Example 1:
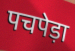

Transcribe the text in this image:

पचपेड़ा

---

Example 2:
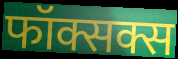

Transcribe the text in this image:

फॉक्सक्स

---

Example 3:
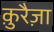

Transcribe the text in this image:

क़ुरैज़ा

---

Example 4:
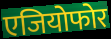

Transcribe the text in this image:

एजियोफोर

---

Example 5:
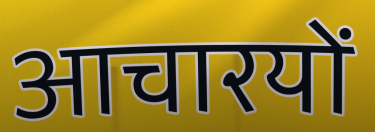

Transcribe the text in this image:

आचारयों